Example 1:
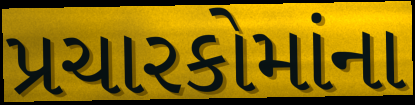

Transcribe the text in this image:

પ્રચારકોમાંના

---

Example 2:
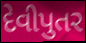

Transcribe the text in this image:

દેવીપુતર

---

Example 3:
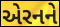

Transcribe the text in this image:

એરનને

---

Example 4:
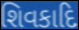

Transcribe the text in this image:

શિવકાદિ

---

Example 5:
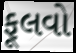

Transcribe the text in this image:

ફૂલવો